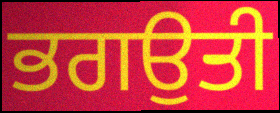
ਭਗਉਤੀ